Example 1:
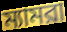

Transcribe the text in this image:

ম্যামরা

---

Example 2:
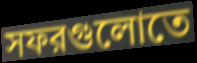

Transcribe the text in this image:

সফরগুলোতে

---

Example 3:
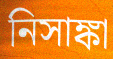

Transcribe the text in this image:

নিসাঙ্কা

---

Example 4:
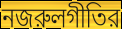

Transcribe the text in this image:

নজরুলগীতির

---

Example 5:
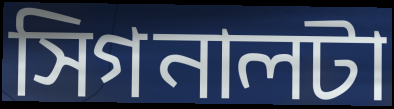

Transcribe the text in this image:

সিগনালটা